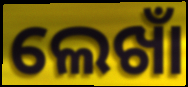
ଲେଖାଁ